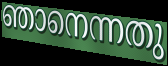
ഞാനെന്നതു